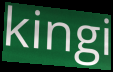
kingi